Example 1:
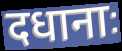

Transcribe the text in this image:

दधानाः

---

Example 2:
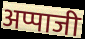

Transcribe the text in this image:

अप्पाजी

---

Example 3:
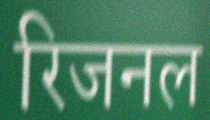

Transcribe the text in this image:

रिजनल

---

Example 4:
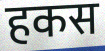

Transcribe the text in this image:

हकस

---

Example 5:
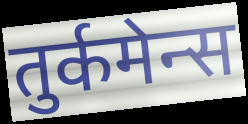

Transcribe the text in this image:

तुर्कमेन्स